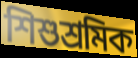
শিশুশ্রমিক